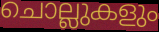
ചൊല്ലുകളും